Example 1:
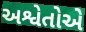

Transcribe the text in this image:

અશ્વેતોએ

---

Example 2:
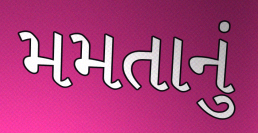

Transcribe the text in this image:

મમતાનું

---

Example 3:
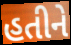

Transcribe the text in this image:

હતીને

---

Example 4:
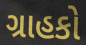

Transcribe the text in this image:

ગ્રાહકો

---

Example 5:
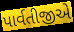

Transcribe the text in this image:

પાર્વતીજીએ